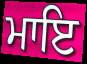
ਮਾਇ